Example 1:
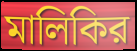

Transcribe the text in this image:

মালিকির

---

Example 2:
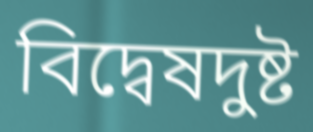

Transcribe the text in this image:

বিদ্বেষদুষ্ট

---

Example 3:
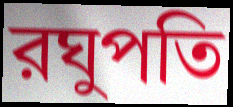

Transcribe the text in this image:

রঘুপতি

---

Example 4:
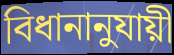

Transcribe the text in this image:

বিধানানুযায়ী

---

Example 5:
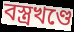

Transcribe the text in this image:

বস্ত্রখণ্ডে